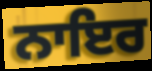
ਨਾਇਰ